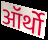
ऑर्थो